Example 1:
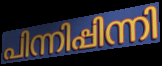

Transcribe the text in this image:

പിന്നിപ്പിന്നി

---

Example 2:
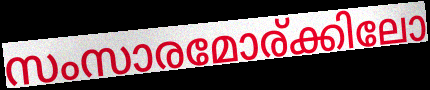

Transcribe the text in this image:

സംസാരമോര്ക്കിലോ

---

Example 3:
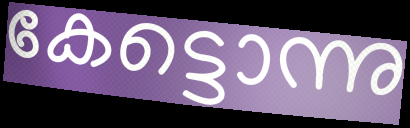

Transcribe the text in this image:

കേട്ടൊന്നു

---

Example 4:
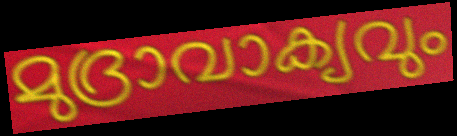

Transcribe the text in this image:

മുദ്രാവാക്യവും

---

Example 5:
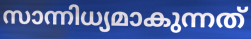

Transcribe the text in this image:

സാന്നിധ്യമാകുന്നത്